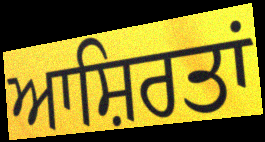
ਆਸ਼ਿਰਤਾਂ